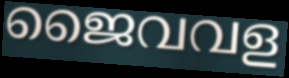
ജൈവവള